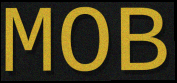
MOB